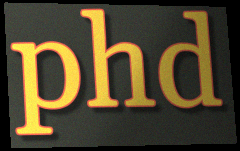
phd